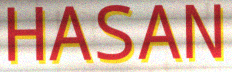
HASAN